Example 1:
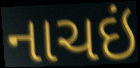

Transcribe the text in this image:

નાચઇં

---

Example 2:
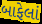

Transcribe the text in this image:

બાફેલાં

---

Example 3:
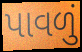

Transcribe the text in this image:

પાવળું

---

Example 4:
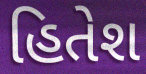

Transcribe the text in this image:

હિતેશ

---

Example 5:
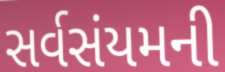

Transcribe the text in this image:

સર્વસંયમની